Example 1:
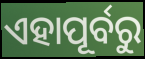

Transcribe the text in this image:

ଏହାପୂର୍ବରୁ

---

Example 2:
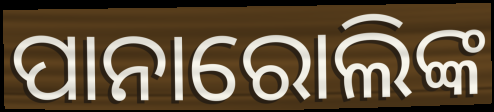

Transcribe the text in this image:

ପାନାରୋଲିଙ୍କ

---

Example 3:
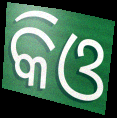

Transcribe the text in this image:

କିଓ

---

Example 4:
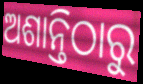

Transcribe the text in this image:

ଅଶାନ୍ତିଠାରୁ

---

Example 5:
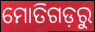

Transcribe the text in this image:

ମୋତିଗଡ଼ରୁ